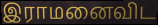
இராமனைவிட